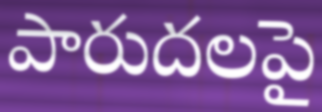
పారుదలపై